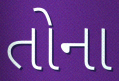
તોના